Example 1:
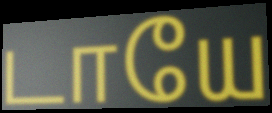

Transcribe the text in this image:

டாயே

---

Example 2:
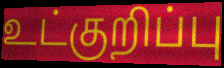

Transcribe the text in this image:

உட்குறிப்பு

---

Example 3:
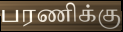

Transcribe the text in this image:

பரணிக்கு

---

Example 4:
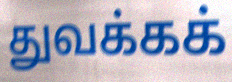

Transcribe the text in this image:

துவக்கக்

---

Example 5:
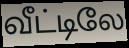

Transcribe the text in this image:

வீட்டிலே